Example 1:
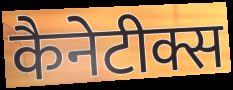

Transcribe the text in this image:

कैनेटीक्स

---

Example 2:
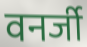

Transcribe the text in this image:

वनर्जी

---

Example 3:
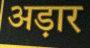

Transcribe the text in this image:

अड़ार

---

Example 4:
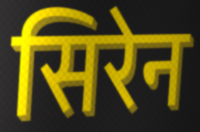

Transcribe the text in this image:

सिरेन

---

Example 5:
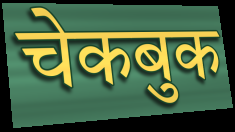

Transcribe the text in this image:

चेकबुक